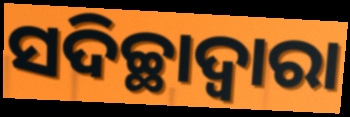
ସଦିଚ୍ଛାଦ୍ୱାରା